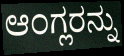
ಆಂಗ್ಲರನ್ನು